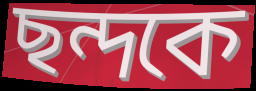
ছন্দকে